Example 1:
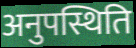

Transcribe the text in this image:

अनुपस्थिति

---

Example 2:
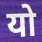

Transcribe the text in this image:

यो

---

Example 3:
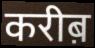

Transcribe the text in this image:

करीब़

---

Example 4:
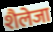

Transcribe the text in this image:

शैलेजा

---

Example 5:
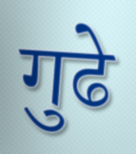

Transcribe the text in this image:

गुढे